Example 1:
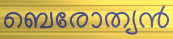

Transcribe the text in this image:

ബെരോത്യൻ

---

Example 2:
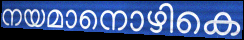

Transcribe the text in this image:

നയമാനൊഴികെ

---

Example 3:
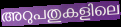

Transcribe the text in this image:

അറുപതുകളിലെ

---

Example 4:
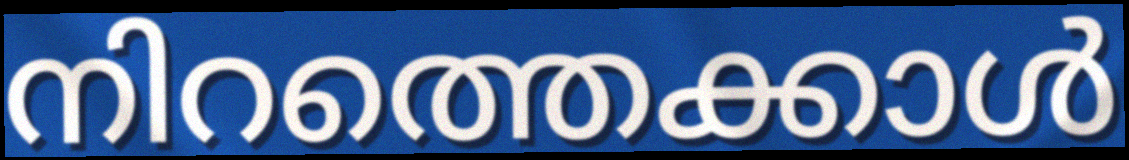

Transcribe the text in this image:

നിറത്തെക്കാൾ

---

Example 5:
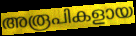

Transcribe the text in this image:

അരൂപികളായ